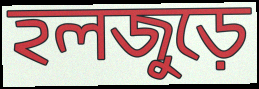
হলজুড়ে